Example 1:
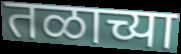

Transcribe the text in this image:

तळाच्या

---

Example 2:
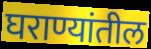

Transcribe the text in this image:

घराण्यांतील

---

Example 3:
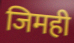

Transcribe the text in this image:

जिमही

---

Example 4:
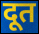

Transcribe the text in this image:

दूत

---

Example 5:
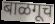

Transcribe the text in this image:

बाळगूच